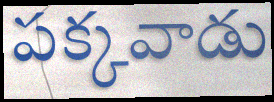
పక్కవాడు